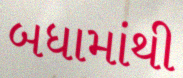
બધામાંથી